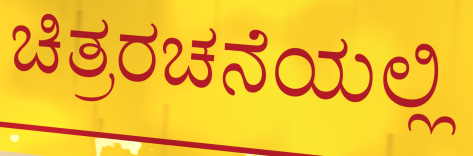
ಚಿತ್ರರಚನೆಯಲ್ಲಿ